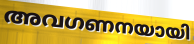
അവഗണനയായി